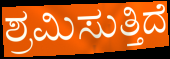
ಶ್ರಮಿಸುತ್ತಿದೆ